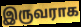
இருவராக